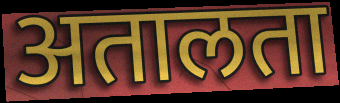
अतालता